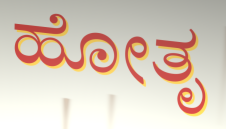
ಹೋತೃ